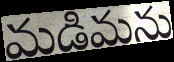
మడిమను